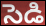
సెడి